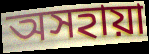
অসহায়া